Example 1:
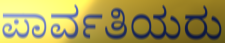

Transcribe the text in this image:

ಪಾರ್ವತಿಯರು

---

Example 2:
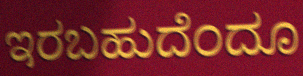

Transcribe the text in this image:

ಇರಬಹುದೆಂದೂ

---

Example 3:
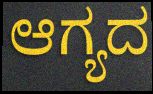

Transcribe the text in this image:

ಆಗ್ಯದ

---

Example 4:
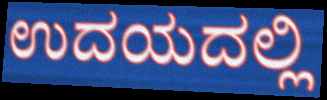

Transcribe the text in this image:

ಉದಯದಲ್ಲಿ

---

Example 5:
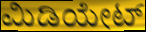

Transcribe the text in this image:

ಮಿಡಿಯೇಟ್